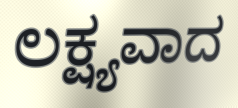
ಲಕ್ಷ್ಯವಾದ